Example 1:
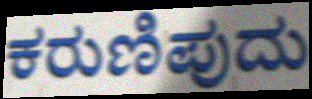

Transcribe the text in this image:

ಕರುಣಿಪುದು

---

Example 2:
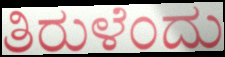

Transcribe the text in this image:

ತಿರುಳೆಂದು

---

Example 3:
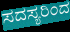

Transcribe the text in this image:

ಸದಸ್ಯರಿಂದ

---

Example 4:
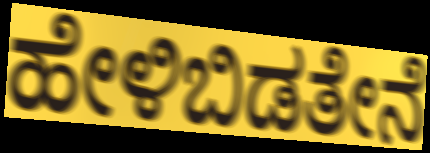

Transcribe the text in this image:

ಹೇಳಿಬಿಡತೇನೆ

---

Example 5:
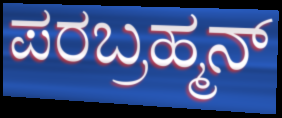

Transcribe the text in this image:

ಪರಬ್ರಹ್ಮನ್